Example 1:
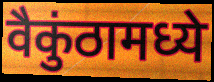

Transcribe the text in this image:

वैकुंठामध्ये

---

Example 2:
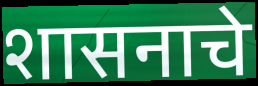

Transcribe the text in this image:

शासनाचे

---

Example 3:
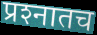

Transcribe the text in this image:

प्रश्नातच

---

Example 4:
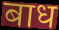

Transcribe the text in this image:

बाध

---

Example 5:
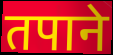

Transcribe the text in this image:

तपाने